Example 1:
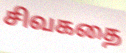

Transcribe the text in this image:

சிவகதை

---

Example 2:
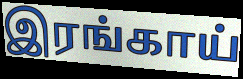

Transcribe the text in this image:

இரங்காய்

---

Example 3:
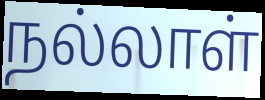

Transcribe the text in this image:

நல்லாள்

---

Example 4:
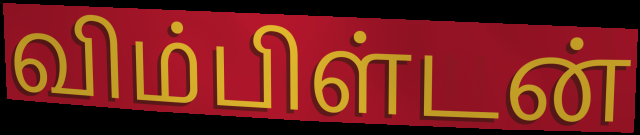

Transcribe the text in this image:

விம்பிள்டன்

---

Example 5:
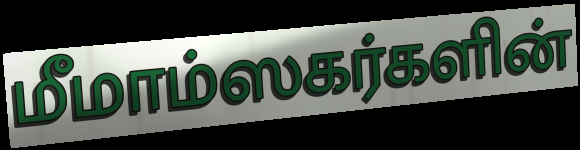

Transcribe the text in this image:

மீமாம்ஸகர்களின்